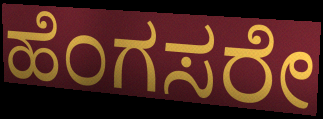
ಹೆಂಗಸರೇ